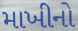
માખીનો